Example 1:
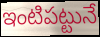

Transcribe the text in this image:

ఇంటిపట్టునే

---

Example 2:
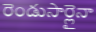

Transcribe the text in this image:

రెండుసార్లైనా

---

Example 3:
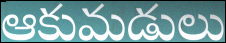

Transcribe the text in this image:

ఆకుమడులు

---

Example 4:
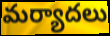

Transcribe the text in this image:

మర్యాదలు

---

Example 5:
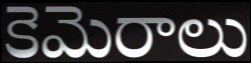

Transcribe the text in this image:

కెమెరాలు